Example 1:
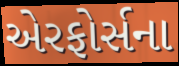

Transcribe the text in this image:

એરફોર્સના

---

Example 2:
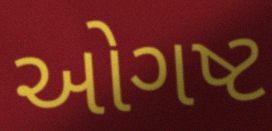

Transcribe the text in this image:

ઓગષ્ટ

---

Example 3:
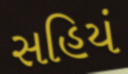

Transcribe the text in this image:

સહિયં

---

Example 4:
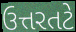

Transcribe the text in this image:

ઉત્તરતટે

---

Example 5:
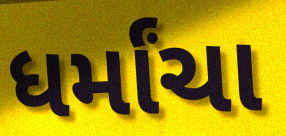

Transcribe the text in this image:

ધર્માંચા